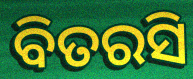
ବିତରସି